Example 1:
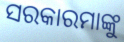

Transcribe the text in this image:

ସରକାରମାଙ୍କୁ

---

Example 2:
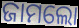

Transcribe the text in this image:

ଜାମଲୋ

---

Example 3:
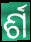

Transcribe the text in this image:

ର୍ଶ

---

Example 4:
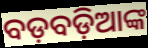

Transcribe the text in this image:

ବଡ଼ବଡ଼ିଆଙ୍କ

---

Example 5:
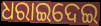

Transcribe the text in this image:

ଧରାଇଦେଇ